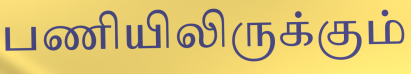
பணியிலிருக்கும்